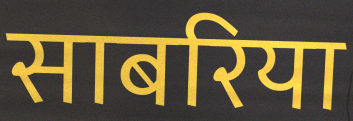
साबरिया